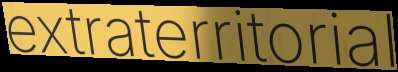
extraterritorial